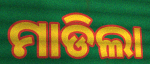
ମାଡିଲା